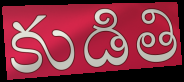
కుడితి